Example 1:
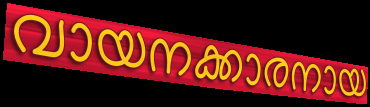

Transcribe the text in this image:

വായനക്കാരനായ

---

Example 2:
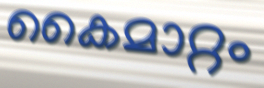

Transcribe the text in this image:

കൈമാറ്റം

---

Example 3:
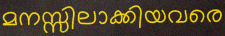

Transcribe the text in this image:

മനസ്സിലാക്കിയവരെ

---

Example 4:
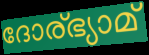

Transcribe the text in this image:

ദോര്ഭ്യാമ്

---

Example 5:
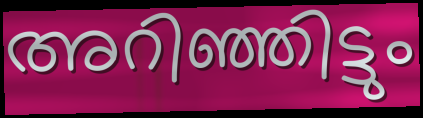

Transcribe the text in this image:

അറിഞ്ഞിട്ടും